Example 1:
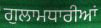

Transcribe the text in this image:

ਗੁਲਾਮਧਾਰੀਆਂ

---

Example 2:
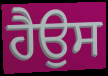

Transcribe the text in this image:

ਹੈਉਸ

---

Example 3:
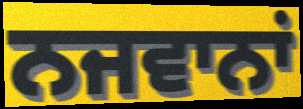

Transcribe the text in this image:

ਨਜਵਾਨਾਂ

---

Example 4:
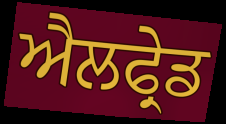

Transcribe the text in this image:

ਐਲਫ੍ਰੇਡ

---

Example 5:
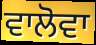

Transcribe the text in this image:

ਵਾਲੋਵਾ